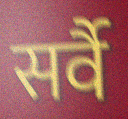
सर्वै